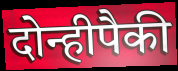
दोन्हीपैकी